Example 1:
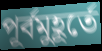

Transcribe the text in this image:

পূর্বমুহূর্তে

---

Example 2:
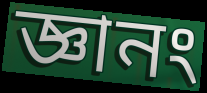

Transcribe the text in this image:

জ্ঞানং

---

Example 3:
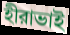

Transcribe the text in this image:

হীরাভাই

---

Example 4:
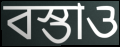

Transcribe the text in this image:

বস্তাও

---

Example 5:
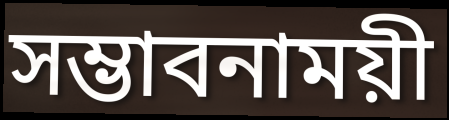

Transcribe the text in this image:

সম্ভাবনাময়ী